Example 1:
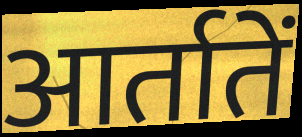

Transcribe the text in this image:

आर्तातें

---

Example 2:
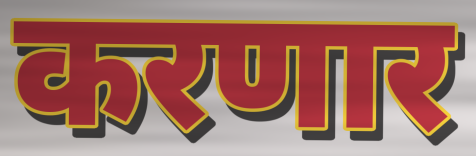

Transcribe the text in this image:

करणार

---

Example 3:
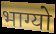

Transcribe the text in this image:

भाग्यो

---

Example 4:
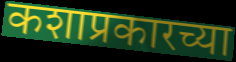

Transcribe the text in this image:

कशाप्रकारच्या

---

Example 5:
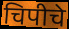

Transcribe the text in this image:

चिपीचे